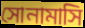
সোনামাসি